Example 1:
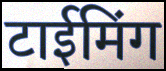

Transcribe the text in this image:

टाईमिंग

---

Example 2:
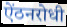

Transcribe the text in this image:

ऐंठनरोधी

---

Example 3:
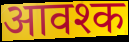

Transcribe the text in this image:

आवश्क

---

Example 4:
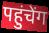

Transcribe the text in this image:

पहुंचेंग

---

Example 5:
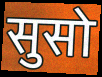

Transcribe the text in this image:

सुसो